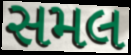
સમલ